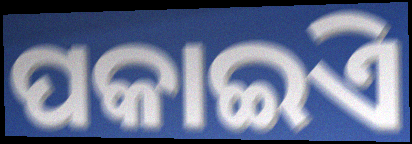
ପକାଇିଏ